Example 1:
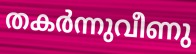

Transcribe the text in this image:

തകർന്നുവീണു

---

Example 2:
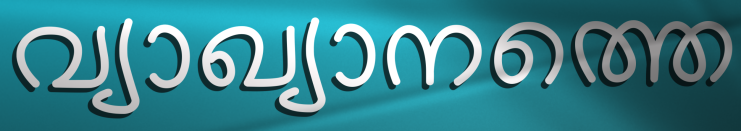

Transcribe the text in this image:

വ്യാഖ്യാനത്തെ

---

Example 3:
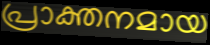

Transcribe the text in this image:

പ്രാക്തനമായ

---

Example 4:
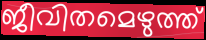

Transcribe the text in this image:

ജീവിതമെഴുത്ത്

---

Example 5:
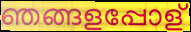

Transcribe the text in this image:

ഞങ്ങളപ്പോള്